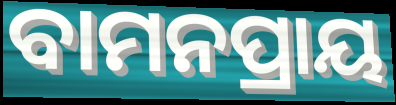
ବାମନପ୍ରାୟ